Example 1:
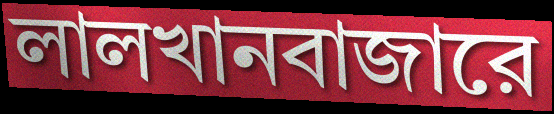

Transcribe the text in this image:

লালখানবাজারে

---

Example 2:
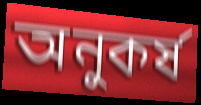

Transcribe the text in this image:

অনুকর্ষ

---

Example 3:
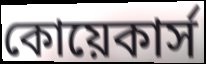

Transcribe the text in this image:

কোয়েকার্স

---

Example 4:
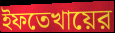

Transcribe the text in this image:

ইফতেখায়ের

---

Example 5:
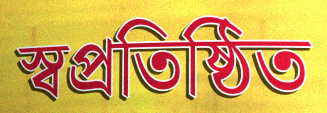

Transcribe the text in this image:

স্বপ্রতিষ্ঠিত